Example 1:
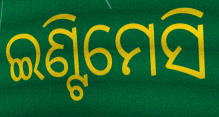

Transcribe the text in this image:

ଇଣ୍ଟିମେସି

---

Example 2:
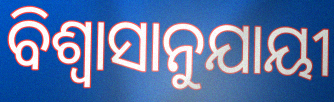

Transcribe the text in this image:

ବିଶ୍ୱାସାନୁଯାୟୀ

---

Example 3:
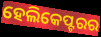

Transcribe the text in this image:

ହେଲିକେପ୍ଟରର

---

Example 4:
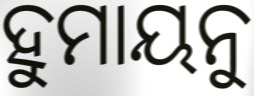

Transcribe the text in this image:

ହୁମାୟନୁ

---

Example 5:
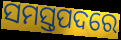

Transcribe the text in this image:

ସମସ୍ତପଦରେ